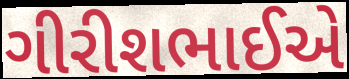
ગીરીશભાઈએ